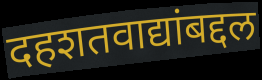
दहशतवाद्यांबद्दल